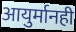
आयुर्मानही